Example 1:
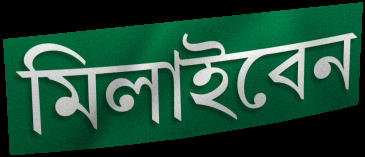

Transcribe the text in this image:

মিলাইবেন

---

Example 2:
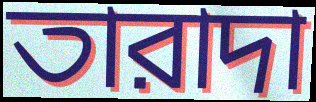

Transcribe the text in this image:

তারাদা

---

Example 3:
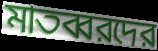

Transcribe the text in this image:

মাতব্বরদের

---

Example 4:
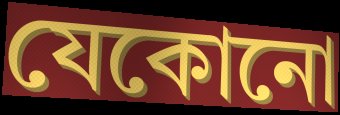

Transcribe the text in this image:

যেকোনো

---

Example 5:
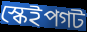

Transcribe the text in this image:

স্কেইপগট